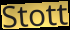
Stott